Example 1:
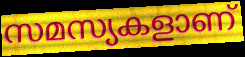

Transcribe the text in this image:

സമസ്യകളാണ്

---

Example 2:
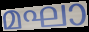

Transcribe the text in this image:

മഘാ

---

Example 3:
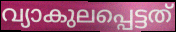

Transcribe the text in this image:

വ്യാകുലപ്പെട്ടത്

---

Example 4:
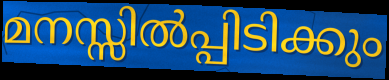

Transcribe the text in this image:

മനസ്സിൽപ്പിടിക്കും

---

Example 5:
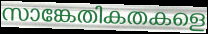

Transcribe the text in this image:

സാങ്കേതികതകളെ